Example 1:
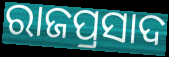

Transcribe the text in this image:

ରାଜପ୍ରସାଦ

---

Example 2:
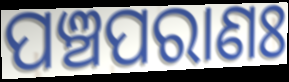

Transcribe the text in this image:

ପଞ୍ଚପରାଣଃ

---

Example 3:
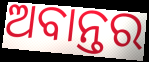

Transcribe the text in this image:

ଅବାନ୍ତର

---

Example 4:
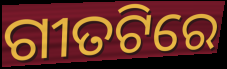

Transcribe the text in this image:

ଗୀତଟିରେ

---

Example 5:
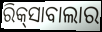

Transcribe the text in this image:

ରିକ୍‌ସାବାଲାର